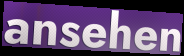
ansehen